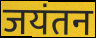
जयंतन